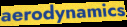
aerodynamics